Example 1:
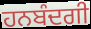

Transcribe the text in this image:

ਹਨਬੰਦਗੀ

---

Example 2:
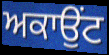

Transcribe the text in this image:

ਅਕਾਉਂਟ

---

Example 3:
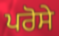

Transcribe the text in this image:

ਪਰੋਸੇ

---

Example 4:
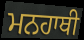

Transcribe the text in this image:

ਮਨਹਾਥੀ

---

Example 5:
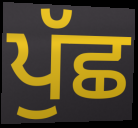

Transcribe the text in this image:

ਪੁੱਛ